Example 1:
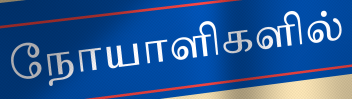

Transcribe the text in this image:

நோயாளிகளில்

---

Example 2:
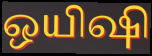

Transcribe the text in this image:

ஒயிஷி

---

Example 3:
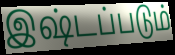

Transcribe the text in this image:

இஷ்டப்படும்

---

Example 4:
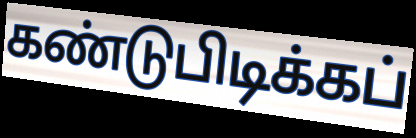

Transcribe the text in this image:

கண்டுபிடிக்கப்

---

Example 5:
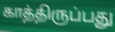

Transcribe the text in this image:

காத்திருப்பது